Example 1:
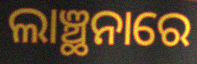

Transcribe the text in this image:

ଲାଞ୍ଛନାରେ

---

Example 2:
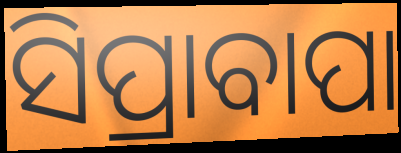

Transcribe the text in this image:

ସିପ୍ରାବାପା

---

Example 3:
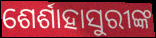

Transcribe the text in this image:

ଶେର୍ଶାହାସୁରୀଙ୍କ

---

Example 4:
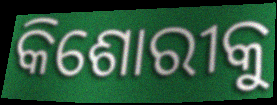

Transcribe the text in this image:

କିଶୋରୀକୁ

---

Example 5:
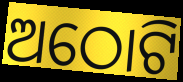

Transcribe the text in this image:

ଅଠୋଟି